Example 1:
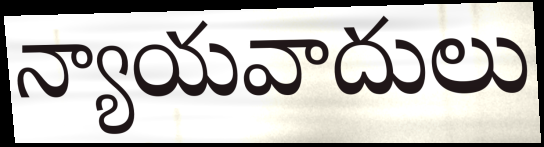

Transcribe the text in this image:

న్యాయవాదులు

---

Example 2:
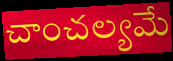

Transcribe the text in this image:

చాంచల్యమే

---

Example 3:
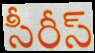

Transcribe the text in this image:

సీరీస్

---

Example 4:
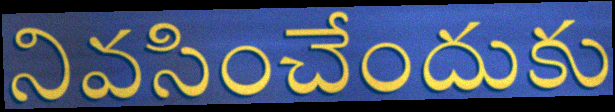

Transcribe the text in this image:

నివసించేందుకు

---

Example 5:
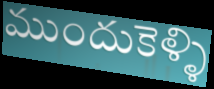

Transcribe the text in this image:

ముందుకెళ్ళి